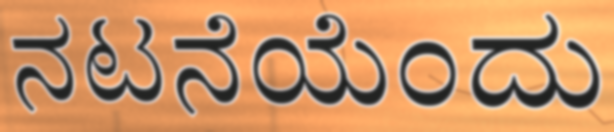
ನಟನೆಯೆಂದು